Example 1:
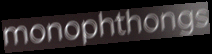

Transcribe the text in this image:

monophthongs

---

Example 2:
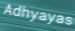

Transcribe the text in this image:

Adhyayas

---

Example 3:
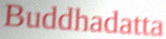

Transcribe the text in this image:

Buddhadatta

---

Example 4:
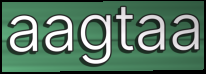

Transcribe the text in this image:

aagtaa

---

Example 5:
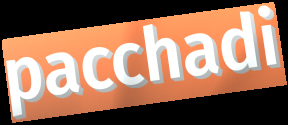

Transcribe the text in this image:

pacchadi